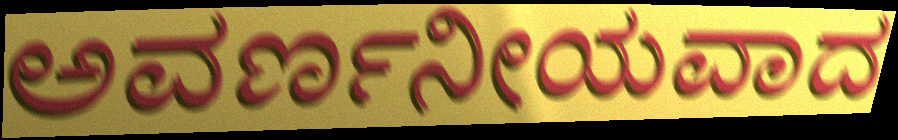
ಅವರ್ಣನೀಯವಾದ